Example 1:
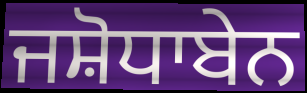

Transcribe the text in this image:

ਜਸ਼ੋਧਾਬੇਨ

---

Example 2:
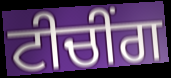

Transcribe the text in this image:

ਟੀਚੀਂਗ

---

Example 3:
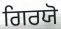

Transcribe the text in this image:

ਗਿਰਯੋ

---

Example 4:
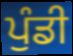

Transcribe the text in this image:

ਪੁੰਡੀ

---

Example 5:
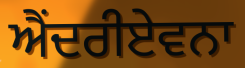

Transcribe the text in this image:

ਐਂਦਰੀਏਵਨਾ